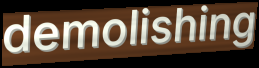
demolishing